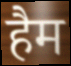
हैम